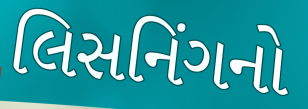
લિસનિંગનો